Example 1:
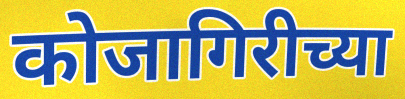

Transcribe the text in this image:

कोजागिरीच्या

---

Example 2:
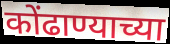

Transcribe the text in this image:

कोंढाण्याच्या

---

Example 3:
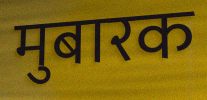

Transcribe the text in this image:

मुबारक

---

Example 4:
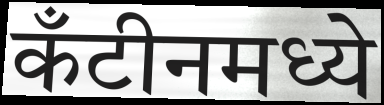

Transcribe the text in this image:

कँटीनमध्ये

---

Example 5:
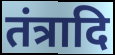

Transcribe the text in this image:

तंत्रादि